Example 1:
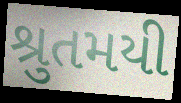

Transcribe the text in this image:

શ્રુતમયી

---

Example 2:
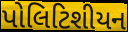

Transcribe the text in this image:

પોલિટિશીયન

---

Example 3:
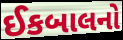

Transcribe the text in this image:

ઈકબાલનો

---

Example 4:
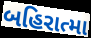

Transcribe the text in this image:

બહિરાત્મા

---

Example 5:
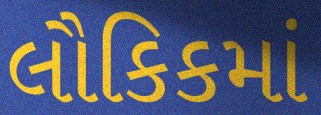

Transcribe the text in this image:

લૌકિકમાં